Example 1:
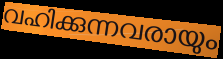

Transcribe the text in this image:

വഹിക്കുന്നവരായും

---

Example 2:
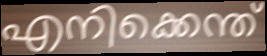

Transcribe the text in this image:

എനിക്കെന്ത്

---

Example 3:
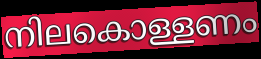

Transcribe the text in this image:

നിലകൊള്ളണം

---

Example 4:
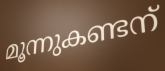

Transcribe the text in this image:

മൂന്നുകണ്ടന്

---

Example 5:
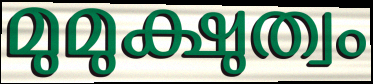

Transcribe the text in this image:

മുമുക്ഷുത്വം